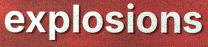
explosions